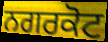
ਨਗਰਕੋਟ